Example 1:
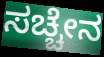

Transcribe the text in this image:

ಸಚ್ಚೇನ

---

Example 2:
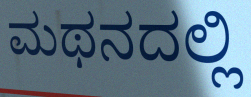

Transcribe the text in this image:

ಮಥನದಲ್ಲಿ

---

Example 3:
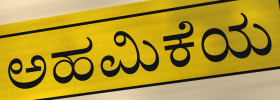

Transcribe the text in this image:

ಅಹಮಿಕೆಯ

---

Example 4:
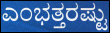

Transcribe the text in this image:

ಎಂಭತ್ತರಷ್ಟು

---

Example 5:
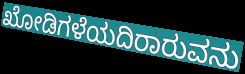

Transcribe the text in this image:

ಖೋಡಿಗಳೆಯದಿರಾರುವನು